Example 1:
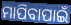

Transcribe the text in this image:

ମାପିବାପାଇଁ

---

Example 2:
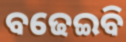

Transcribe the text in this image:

ବଢେଇବି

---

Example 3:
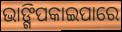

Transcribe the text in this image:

ଭାଙ୍ଗିପକାଇପାରେ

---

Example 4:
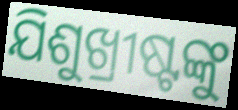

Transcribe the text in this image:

ଯିଶୁଖ୍ରୀଷ୍ଟଙ୍କୁ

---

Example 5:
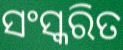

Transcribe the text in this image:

ସଂସ୍କରିତ